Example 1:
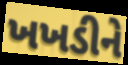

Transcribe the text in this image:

ખખડીને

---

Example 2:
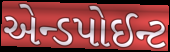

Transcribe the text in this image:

એન્ડપોઈન્ટ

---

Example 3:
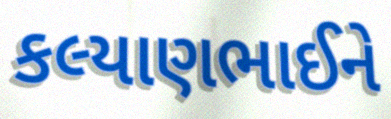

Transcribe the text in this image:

કલ્યાણભાઈને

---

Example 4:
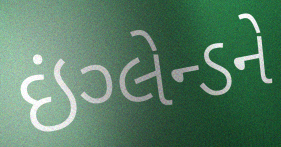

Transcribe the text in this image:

ઇંગ્લેન્ડને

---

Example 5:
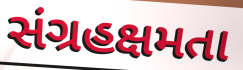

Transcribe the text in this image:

સંગ્રહક્ષમતા